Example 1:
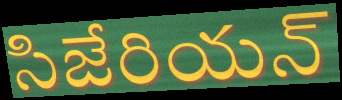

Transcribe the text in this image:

సిజేరియన్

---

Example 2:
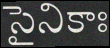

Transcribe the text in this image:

సైనికాః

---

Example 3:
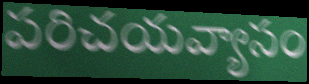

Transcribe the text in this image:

పరిచయవ్యాసం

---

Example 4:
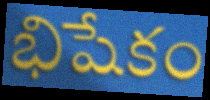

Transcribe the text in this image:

భిషేకం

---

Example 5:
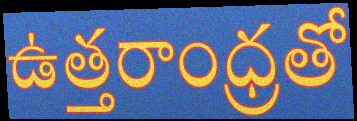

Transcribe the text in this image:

ఉత్తరాంధ్రతో